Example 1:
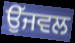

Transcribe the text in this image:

ਉੱਜਵਲ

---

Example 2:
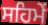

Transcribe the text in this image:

ਸਹਿਮੇਂ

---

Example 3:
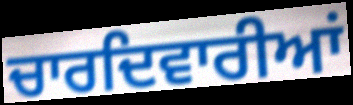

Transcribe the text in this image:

ਚਾਰਦਿਵਾਰੀਆਂ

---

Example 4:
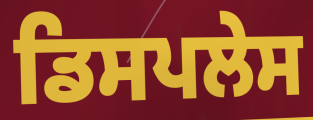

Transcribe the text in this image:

ਡਿਸਪਲੇਸ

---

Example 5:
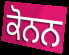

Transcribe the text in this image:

ਕੋਨਨ